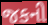
જકની